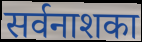
सर्वनाशका